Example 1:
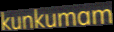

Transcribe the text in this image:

kunkumam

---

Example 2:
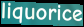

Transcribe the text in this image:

liquorice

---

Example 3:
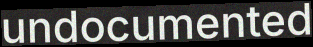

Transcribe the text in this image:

undocumented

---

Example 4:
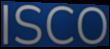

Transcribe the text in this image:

ISCO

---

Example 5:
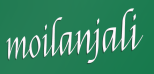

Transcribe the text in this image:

moilanjali